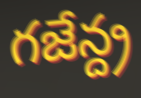
గజేన్ద్ర